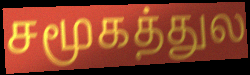
சமூகத்துல